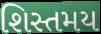
શિસ્તમય